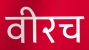
वीरच